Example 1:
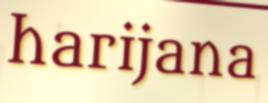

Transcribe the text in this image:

harijana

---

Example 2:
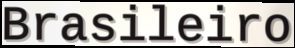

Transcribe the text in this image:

Brasileiro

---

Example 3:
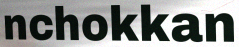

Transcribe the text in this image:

nchokkan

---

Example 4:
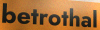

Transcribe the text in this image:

betrothal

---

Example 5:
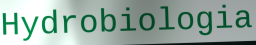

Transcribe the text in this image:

Hydrobiologia